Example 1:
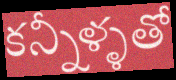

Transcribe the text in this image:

కన్నీళ్ళతో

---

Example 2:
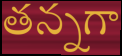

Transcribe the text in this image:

తన్నగా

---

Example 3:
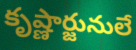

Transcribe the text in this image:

కృష్ణార్జునులే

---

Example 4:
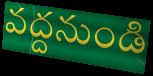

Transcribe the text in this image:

వద్దనుండి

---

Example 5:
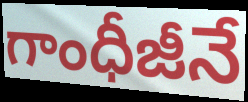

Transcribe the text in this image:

గాంధీజీనే